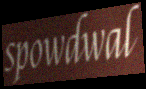
spowdwal